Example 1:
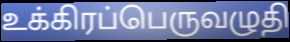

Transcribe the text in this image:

உக்கிரப்பெருவழுதி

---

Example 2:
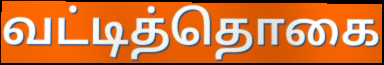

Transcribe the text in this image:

வட்டித்தொகை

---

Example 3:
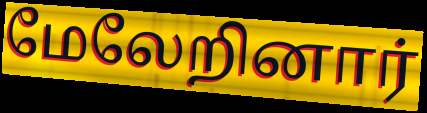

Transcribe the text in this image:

மேலேறினார்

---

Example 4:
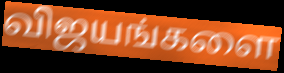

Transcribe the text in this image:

விஜயங்களை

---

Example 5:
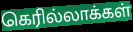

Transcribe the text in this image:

கெரில்லாக்கள்